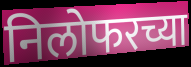
निलोफरच्या